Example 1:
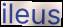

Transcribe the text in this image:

ileus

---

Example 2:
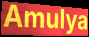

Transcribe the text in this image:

Amulya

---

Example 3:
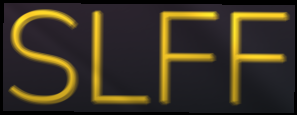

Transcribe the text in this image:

SLFF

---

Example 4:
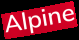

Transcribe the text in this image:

Alpine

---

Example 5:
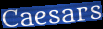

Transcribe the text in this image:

Caesars